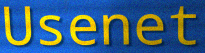
Usenet